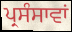
ਪ੍ਰਸੰਸਾਵਾਂ